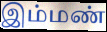
இம்மண்